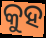
କୁହ